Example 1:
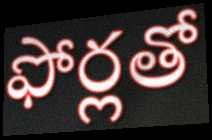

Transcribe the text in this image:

ఫోర్లతో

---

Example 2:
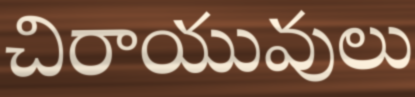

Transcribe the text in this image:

చిరాయువులు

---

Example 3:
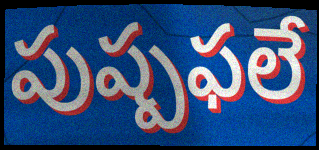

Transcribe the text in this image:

పుష్పఫలే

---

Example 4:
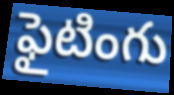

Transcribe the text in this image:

ఫైటింగు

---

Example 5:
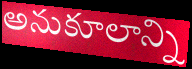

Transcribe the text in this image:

అనుకూలాన్ని